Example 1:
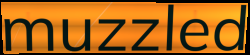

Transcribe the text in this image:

muzzled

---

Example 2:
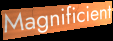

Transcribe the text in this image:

Magnificient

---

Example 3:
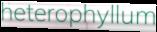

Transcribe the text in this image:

heterophyllum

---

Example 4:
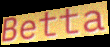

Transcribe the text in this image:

Betta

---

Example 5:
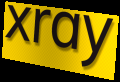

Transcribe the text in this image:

xray